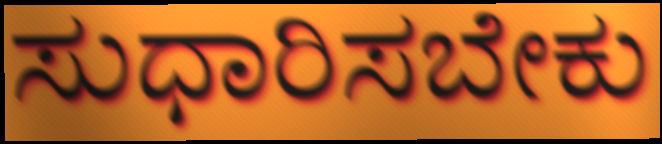
ಸುಧಾರಿಸಬೇಕು